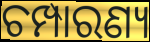
ଚମ୍ପାରଣ୍ୟ